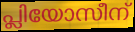
പ്ലിയോസീന്